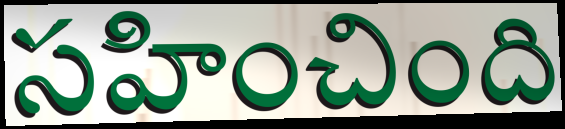
సహించింది